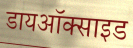
डायऑक्साइड